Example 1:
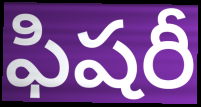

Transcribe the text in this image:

ఫిషరీ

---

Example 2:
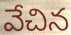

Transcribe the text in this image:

వేచిన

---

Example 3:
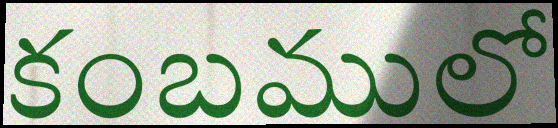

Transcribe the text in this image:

కంబములో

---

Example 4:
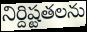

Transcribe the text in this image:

నిర్దిష్టతలను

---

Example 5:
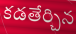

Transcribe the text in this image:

కడతేర్చిన